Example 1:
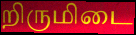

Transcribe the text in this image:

றிருமிடை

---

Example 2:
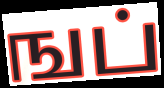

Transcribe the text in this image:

ஙப்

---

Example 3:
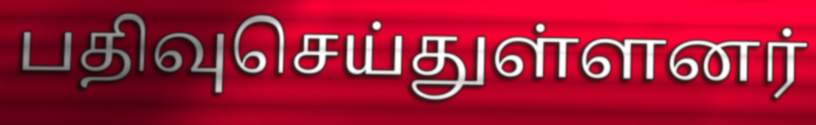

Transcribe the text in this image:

பதிவுசெய்துள்ளனர்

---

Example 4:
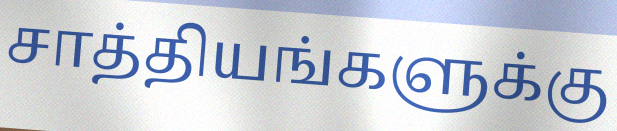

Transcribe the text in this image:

சாத்தியங்களுக்கு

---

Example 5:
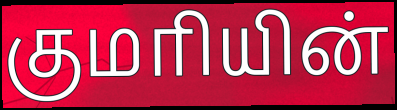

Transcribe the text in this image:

குமரியின்